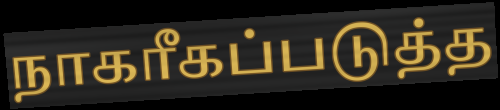
நாகரீகப்படுத்த